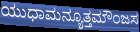
ಯುಧಾಮನ್ಯೂತ್ತಮೌಂಜಸ